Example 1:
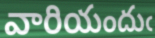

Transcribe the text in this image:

వారియందుఁ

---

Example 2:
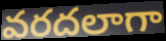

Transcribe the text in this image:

వరదలాగా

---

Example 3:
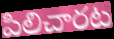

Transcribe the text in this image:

పిలిచారట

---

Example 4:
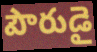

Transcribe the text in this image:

పౌరుడై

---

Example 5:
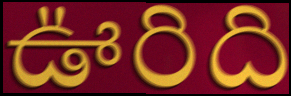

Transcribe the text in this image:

ఊరిది